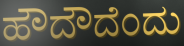
ಹೌದೌದೆಂದು